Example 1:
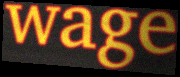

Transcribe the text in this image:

wage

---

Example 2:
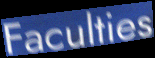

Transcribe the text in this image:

Faculties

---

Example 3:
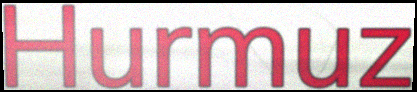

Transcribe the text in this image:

Hurmuz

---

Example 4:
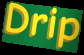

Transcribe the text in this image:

Drip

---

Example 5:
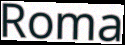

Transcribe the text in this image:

Roma